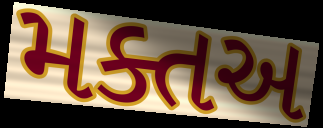
મક્તઅ